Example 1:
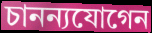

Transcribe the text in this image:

চানন্যযোগেন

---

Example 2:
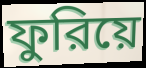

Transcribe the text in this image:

ফুরিয়ে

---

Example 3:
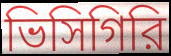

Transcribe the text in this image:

ভিসিগিরি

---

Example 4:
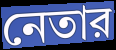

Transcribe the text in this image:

নেতার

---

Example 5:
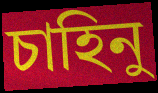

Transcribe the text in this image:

চাহিনু